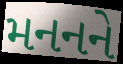
મનનને